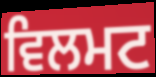
ਵਿਲਮਟ